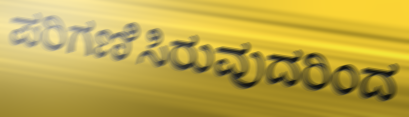
ಪರಿಗಣಿಸಿರುವುದರಿಂದ